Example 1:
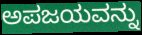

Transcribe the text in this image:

ಅಪಜಯವನ್ನು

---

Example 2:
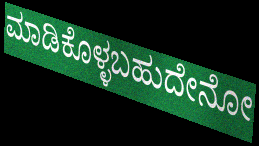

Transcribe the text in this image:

ಮಾಡಿಕೊಳ್ಳಬಹುದೇನೋ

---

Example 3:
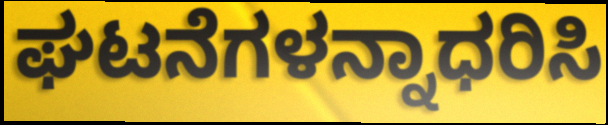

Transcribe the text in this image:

ಘಟನೆಗಳನ್ನಾಧರಿಸಿ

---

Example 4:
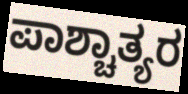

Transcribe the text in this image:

ಪಾಶ್ಚಾತ್ಯರ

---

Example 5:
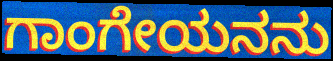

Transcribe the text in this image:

ಗಾಂಗೇಯನನು